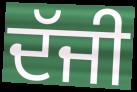
ਦੱਜੀ